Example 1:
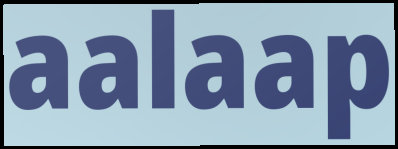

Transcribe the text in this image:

aalaap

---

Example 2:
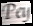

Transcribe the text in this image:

Pey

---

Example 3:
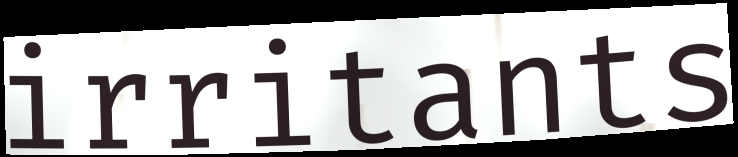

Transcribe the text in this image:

irritants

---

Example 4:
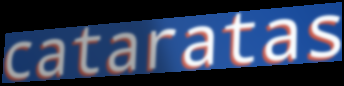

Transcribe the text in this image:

cataratas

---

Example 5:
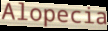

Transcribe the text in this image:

Alopecia